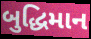
બુદ્ધિમાન